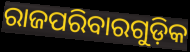
ରାଜପରିବାରଗୁଡ଼ିକ